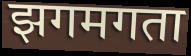
झगमगता